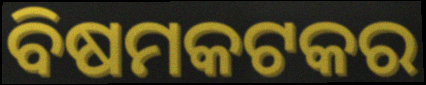
ବିଷମକଟକର